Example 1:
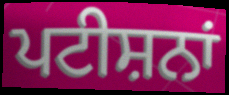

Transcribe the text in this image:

ਪਟੀਸ਼ਨਾਂ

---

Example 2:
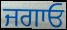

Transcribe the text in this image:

ਜਗਾਓ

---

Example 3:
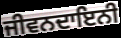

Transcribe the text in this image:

ਜੀਵਨਦਾਇਨੀ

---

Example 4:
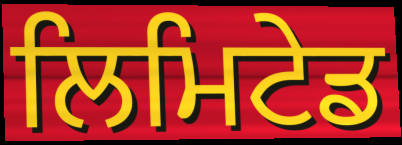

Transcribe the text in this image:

ਲਿਮਿਟੇਡ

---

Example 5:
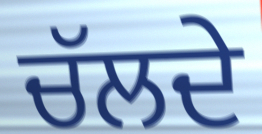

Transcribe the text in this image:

ਚੱਲਦੇ